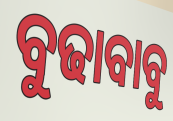
ବୁଢାବାବୁ